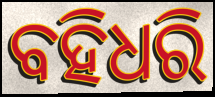
ବହିଧରି